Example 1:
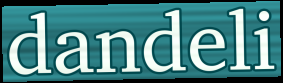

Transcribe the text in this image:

dandeli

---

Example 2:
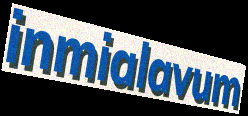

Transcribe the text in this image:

inmialavum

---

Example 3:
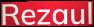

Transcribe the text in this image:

Rezaul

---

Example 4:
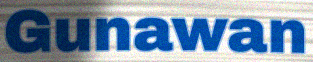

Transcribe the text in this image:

Gunawan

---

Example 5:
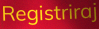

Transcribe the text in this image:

Registriraj